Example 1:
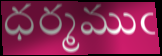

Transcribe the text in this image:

ధర్మముఁ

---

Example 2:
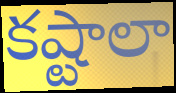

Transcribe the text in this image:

కష్టాలా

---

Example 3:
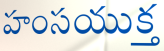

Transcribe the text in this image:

హంసయుక్త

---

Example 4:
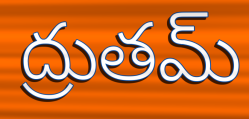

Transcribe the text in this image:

ద్రుతమ్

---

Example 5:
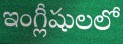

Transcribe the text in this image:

ఇంగ్లీషులలో